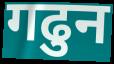
गढुन